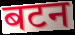
बटन